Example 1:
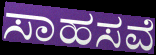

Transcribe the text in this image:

ಸಾಹಸವೆ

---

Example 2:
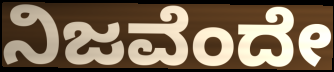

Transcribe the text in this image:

ನಿಜವೆಂದೇ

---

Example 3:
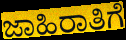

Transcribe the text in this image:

ಜಾಹಿರಾತಿಗೆ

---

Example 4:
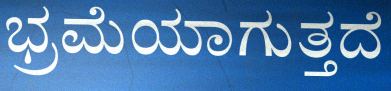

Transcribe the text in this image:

ಭ್ರಮೆಯಾಗುತ್ತದೆ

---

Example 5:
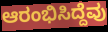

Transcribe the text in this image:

ಆರಂಭಿಸಿದ್ದೆವು